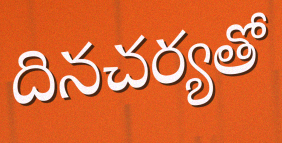
దినచర్యతో